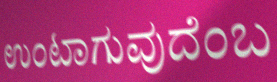
ಉಂಟಾಗುವುದೆಂಬ